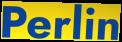
Perlin